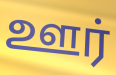
ஊர்